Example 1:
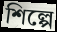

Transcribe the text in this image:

শিল্পে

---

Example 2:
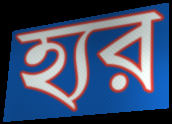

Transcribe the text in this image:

হ্যর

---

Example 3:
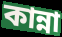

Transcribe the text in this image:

কান্না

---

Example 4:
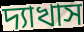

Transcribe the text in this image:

দ্যাখাস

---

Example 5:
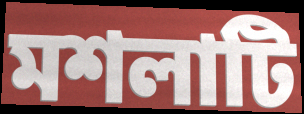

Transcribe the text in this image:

মশলাটি